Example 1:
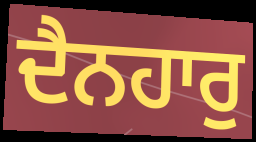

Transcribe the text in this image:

ਦੈਨਹਾਰੁ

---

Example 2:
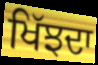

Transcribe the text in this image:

ਖਿੱਝਦਾ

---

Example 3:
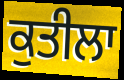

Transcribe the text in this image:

ਕੁਤੀਲਾ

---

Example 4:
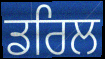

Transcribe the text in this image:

ਡਰਿਲ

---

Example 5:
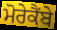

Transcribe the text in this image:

ਮੋਰੇਕੈਂਬੇ